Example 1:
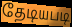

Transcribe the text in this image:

தேடியபடி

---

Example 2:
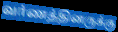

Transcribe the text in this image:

வர்ணத்தினருக்கு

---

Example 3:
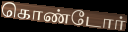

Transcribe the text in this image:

கொண்டோர்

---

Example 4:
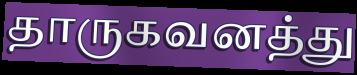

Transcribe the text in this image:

தாருகவனத்து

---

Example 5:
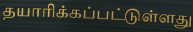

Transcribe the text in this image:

தயாரிக்கப்பட்டுள்ளது